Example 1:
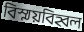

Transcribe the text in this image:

বিস্ময়বিহ্বল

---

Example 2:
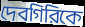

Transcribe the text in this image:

দেবগিরিকে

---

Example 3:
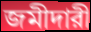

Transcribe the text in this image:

জমীদারী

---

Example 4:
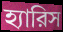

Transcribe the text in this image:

হ্যারিস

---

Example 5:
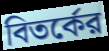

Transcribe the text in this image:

বিতর্কের